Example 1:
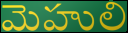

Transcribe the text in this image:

మెహులి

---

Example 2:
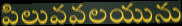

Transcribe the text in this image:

పిలువవలయును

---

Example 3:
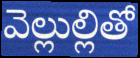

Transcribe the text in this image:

వెల్లుల్లితో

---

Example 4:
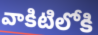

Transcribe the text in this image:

వాకిటిలోకి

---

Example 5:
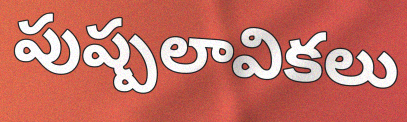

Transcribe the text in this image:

పుష్పలావికలు